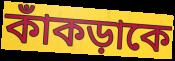
কাঁকড়াকে